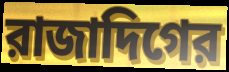
রাজাদিগের